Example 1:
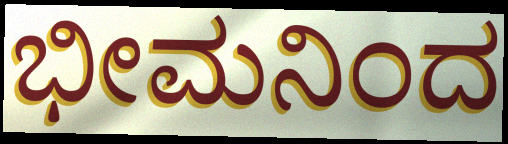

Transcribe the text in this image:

ಭೀಮನಿಂದ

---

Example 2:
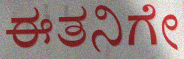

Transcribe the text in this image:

ಈತನಿಗೇ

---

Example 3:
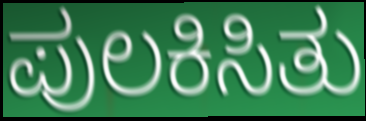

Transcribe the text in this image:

ಪುಲಕಿಸಿತು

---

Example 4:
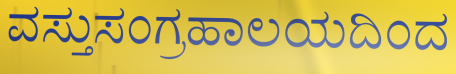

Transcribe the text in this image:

ವಸ್ತುಸಂಗ್ರಹಾಲಯದಿಂದ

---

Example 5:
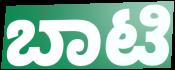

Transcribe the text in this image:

ಬಾಟಿ